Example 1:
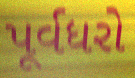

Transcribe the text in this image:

પૂર્વધરો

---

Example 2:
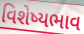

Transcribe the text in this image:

વિશેષ્યભાવ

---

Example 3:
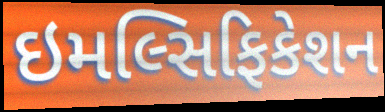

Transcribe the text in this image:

ઇમલ્સિફિકેશન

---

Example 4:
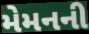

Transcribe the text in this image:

મેમનની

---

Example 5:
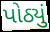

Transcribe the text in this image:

પોઠ્યું